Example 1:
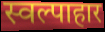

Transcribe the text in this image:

स्‍वल्‍पाहार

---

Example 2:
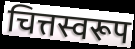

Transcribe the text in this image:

चित्तस्वरूप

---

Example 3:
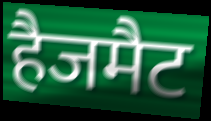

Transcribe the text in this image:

हैजमैट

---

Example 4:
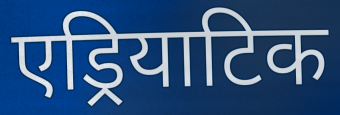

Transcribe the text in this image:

एड्रियाटिक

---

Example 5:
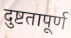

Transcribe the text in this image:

दुष्टतापूर्ण